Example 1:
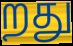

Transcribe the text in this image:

றது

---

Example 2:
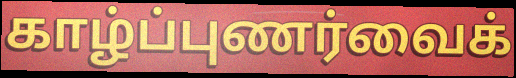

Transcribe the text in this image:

காழ்ப்புணர்வைக்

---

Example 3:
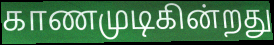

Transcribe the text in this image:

காணமுடிகின்றது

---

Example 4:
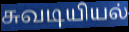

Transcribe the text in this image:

சுவடியியல்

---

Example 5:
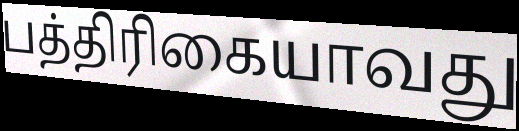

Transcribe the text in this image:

பத்திரிகையாவது